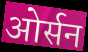
ओर्सन